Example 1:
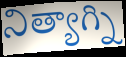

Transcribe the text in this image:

నిత్యాగ్ని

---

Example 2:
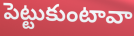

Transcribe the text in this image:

పెట్టుకుంటావా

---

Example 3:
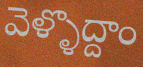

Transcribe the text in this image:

వెళ్ళొద్దాం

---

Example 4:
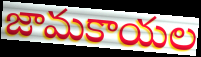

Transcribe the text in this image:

జామకాయల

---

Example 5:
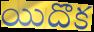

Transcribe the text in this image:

యిదొక